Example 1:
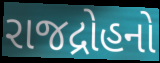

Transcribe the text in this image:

રાજદ્રોહનો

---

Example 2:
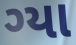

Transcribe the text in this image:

ગ્યા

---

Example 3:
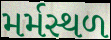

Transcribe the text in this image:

મર્મસ્થળ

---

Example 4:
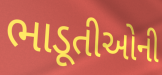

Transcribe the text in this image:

ભાડૂતીઓની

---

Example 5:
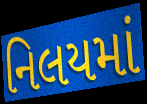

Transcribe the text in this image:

નિલયમાં